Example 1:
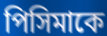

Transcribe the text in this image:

পিসিমাকে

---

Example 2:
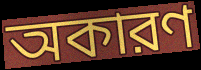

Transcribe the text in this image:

অকারণ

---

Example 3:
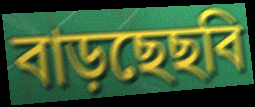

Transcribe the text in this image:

বাড়ছেছবি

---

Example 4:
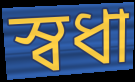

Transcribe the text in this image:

স্বধা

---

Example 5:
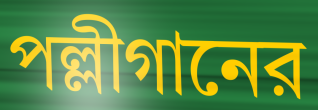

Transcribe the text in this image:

পল্লীগানের